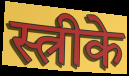
स्त्रीके